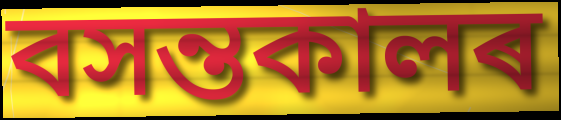
বসন্তকালৰ